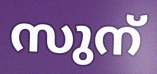
സുന്